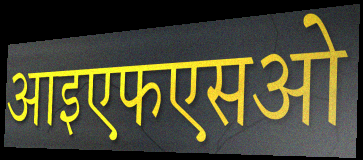
आइएफएसओ